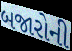
બજારોની